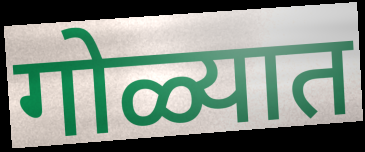
गोळ्यात